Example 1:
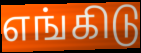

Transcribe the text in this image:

எங்கிடு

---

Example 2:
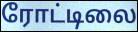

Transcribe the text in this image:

ரோட்டிலை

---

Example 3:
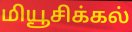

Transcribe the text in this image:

மியூசிக்கல்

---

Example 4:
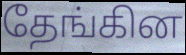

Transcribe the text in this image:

தேங்கின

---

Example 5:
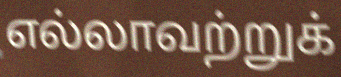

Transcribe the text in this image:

எல்லாவற்றுக்